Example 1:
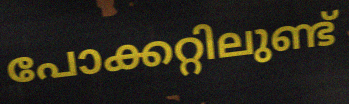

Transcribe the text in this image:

പോക്കറ്റിലുണ്ട്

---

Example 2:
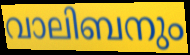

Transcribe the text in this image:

വാലിബനും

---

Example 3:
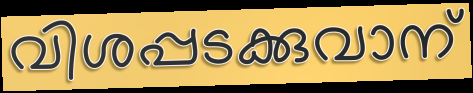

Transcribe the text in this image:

വിശപ്പടക്കുവാന്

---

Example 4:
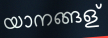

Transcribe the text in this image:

യാനങ്ങള്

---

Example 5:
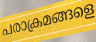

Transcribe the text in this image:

പരാക്രമങ്ങളെ